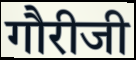
गौरीजी